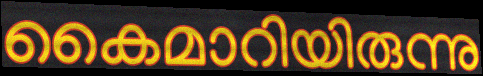
കൈമാറിയിരുന്നു